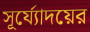
সূর্য্যোদয়ের